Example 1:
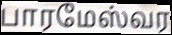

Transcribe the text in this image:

பாரமேஸ்வர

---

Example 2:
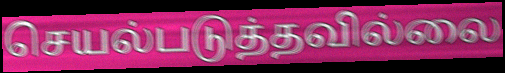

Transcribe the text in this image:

செயல்படுத்தவில்லை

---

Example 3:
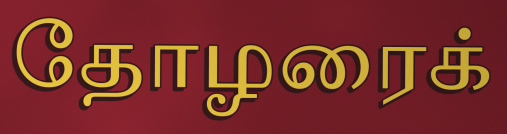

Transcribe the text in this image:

தோழரைக்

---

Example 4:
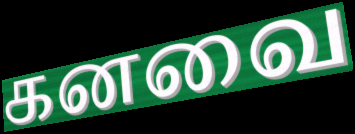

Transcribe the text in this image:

கனவை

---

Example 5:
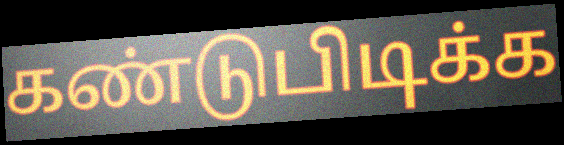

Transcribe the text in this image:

கண்டுபிடிக்க